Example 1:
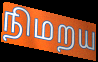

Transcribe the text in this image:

நிமறய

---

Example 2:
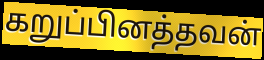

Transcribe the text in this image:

கறுப்பினத்தவன்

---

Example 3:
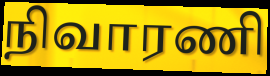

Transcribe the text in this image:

நிவாரணி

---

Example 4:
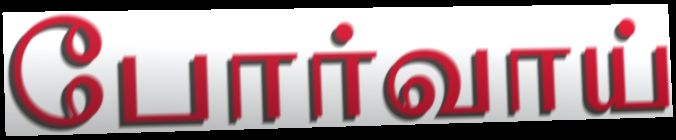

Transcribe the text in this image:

போர்வாய்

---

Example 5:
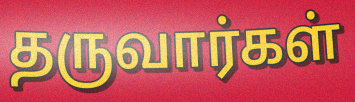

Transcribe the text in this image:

தருவார்கள்